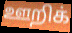
ஊறிக்